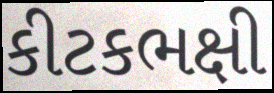
કીટકભક્ષી